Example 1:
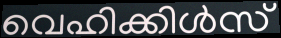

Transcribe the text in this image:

വെഹിക്കിൾസ്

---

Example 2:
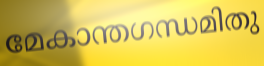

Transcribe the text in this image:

മേകാന്തഗന്ധമിതു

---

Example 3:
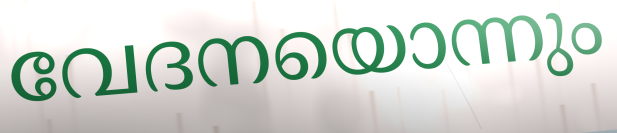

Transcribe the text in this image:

വേദനയൊന്നും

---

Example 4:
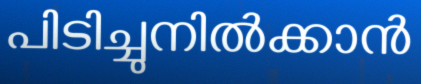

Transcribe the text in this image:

പിടിച്ചുനിൽക്കാൻ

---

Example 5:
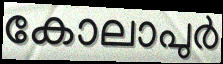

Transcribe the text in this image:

കോലാപുർ